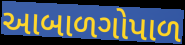
આબાળગોપાળ